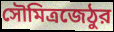
সৌমিত্রজেঠুর